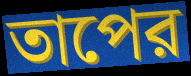
তাপের